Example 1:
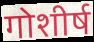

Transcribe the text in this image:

गोशीर्ष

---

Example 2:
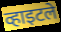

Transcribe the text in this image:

व्हाइटले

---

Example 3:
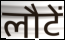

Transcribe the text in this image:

लौटें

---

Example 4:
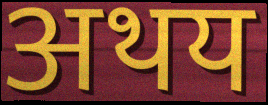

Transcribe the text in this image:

अथय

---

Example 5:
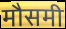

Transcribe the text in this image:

मौसमी